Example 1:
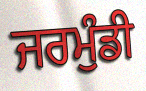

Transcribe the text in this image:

ਜਰਮੁੰਡੀ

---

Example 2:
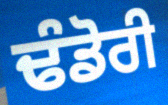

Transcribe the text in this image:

ਢੰਡੋਰੀ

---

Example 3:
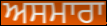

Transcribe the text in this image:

ਅਸਮਾਰਾ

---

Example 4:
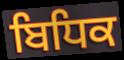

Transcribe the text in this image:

ਬਿਧਿਕ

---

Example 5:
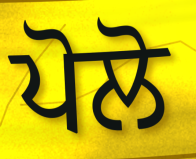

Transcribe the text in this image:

ਪੋਲੋ